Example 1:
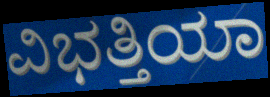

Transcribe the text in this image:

ವಿಭತ್ತಿಯಾ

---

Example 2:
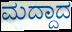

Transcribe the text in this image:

ಮದ್ದಾದ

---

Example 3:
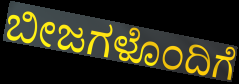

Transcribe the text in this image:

ಬೀಜಗಳೊಂದಿಗೆ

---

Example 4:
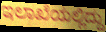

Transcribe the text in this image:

ಇಲಾಖೆಯಲ್ಲಿದ್ದು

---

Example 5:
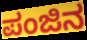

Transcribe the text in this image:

ಪಂಜಿನ